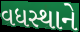
વધસ્થાને